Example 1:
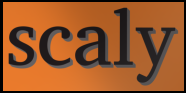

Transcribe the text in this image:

scaly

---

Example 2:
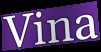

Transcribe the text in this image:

Vina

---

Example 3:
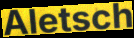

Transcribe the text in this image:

Aletsch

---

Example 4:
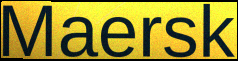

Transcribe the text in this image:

Maersk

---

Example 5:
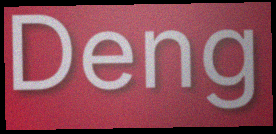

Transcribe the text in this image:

Deng